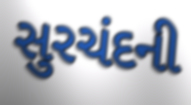
સુરચંદની